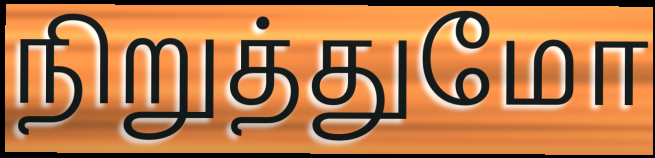
நிறுத்துமோ